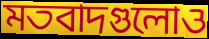
মতবাদগুলোও